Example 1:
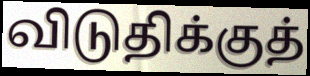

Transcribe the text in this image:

விடுதிக்குத்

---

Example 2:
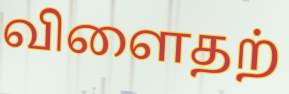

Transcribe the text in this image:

விளைதற்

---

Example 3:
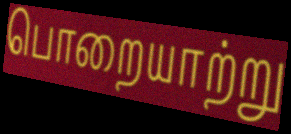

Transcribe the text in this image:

பொறையாற்று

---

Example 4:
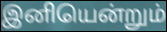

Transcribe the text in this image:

இனியென்றும்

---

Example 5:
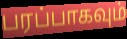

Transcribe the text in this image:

பரப்பாகவும்